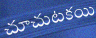
చూచుటకయి